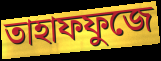
তাহাফফুজে